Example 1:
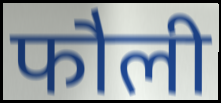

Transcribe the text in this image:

फौली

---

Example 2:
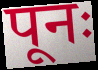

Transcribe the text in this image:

पूनः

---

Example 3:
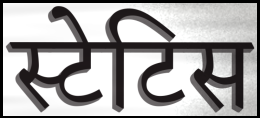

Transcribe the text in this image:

स्टेटिस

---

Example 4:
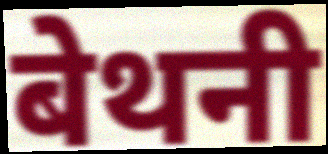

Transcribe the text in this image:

बेथनी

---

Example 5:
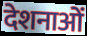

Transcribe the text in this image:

देशनाओं